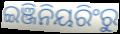
ଇଞ୍ଜିନିୟରିଂରୁ